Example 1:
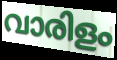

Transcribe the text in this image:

വാരിളം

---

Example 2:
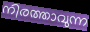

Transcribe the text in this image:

നിരത്താവുന്ന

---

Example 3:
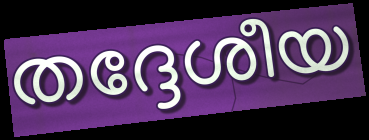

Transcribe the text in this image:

തദ്ദേശീയ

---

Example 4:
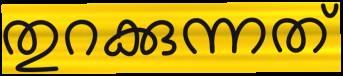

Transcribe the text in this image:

തുറക്കുന്നത്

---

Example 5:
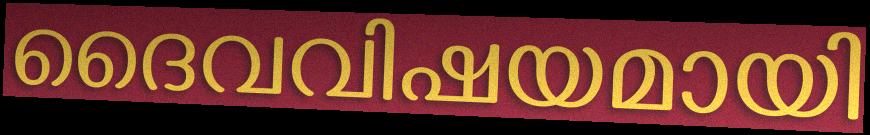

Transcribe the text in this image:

ദൈവവിഷയമായി